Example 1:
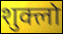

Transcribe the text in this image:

शुक्लो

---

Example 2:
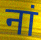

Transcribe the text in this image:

नां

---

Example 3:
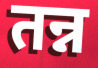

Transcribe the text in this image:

तन्न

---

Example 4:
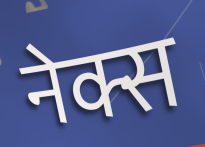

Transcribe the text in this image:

नेक्स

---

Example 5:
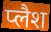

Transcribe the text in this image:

प्लैश